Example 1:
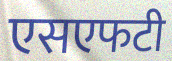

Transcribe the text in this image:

एसएफटी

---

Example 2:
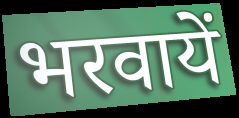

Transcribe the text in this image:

भरवायें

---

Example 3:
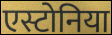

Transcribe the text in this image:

एस्टोनिया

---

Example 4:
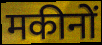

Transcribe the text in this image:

मकीनों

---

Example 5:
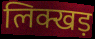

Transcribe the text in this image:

लिक्खड़